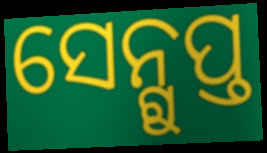
ସେନ୍ଗୁପ୍ତ